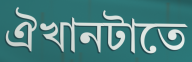
ঐখানটাতে